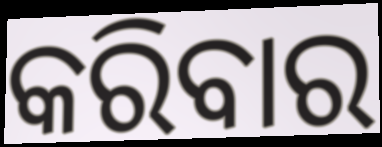
କରିବାର